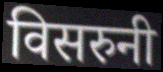
विसरुनी